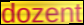
dozent